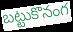
బట్టుకొనంగ